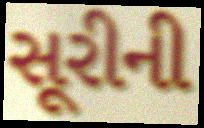
સૂરીની